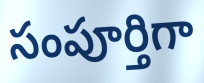
సంపూర్తిగా